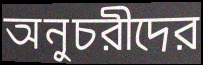
অনুচরীদের